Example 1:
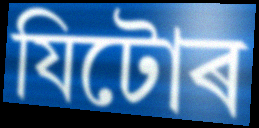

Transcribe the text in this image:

যিটোৰ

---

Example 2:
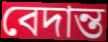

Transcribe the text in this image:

বেদান্ত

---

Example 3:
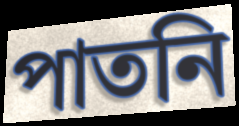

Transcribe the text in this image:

পাতনি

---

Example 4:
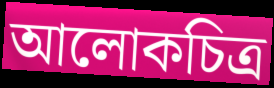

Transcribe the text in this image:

আলোকচিত্ৰ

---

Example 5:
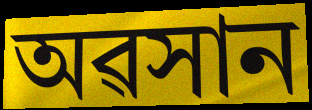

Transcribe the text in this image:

অৱসান